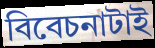
বিবেচনাটাই